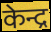
केन्‍द्र